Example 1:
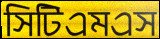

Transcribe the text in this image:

সিটিএমএস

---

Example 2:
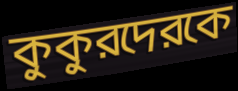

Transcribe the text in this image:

কুকুরদেরকে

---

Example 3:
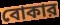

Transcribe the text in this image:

বোকার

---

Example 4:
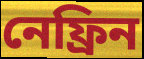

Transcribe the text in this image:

নেফ্রিন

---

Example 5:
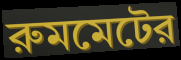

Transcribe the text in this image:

রুমমেটের